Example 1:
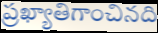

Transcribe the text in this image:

ప్రఖ్యాతిగాంచినది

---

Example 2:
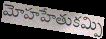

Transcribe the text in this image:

మోహహేతుకమ్పి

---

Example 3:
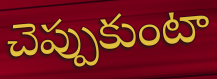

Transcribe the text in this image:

చెప్పుకుంటా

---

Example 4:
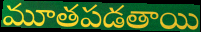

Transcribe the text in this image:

మూతపడతాయి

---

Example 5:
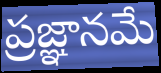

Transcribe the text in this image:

ప్రజ్ఞానమే